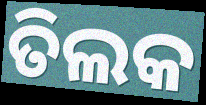
ତିଲକ